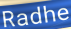
Radhe